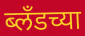
ब्लँडच्या